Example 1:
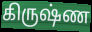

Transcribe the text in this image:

கிருஷ்ண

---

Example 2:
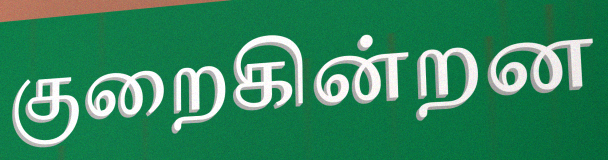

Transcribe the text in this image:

குறைகின்றன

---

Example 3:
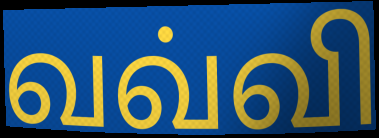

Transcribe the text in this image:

வவ்வி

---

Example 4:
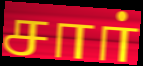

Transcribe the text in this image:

சார்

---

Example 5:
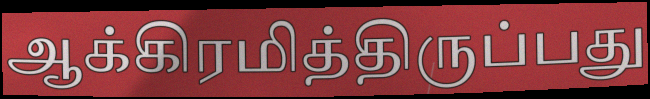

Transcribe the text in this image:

ஆக்கிரமித்திருப்பது